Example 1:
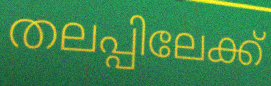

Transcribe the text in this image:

തലപ്പിലേക്ക്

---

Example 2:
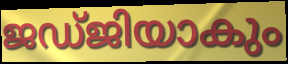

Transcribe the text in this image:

ജഡ്ജിയാകും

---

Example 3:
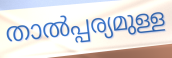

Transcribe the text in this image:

താൽപ്പര്യമുള്ള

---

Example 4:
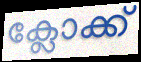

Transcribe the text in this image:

ക്ലോക്ക്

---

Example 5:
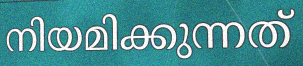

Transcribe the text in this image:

നിയമിക്കുന്നത്